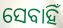
ସେବାହିଁ